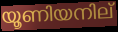
യൂണിയനില്